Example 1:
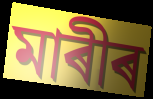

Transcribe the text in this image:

মাৰীৰ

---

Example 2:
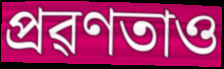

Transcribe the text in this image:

প্ৰৱণতাও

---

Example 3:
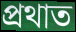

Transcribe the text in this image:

প্ৰথাত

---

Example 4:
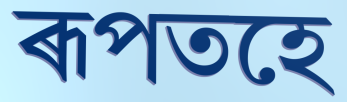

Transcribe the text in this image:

ৰূপতহে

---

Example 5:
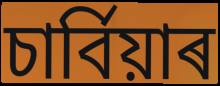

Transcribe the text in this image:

চাৰ্বিয়াৰ